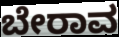
ಬೇರಾವ